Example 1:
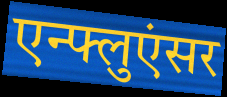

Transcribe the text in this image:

एन्फ्लुएंसर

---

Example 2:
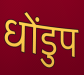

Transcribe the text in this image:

धोंडुप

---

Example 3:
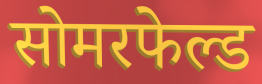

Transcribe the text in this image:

सोमरफेल्ड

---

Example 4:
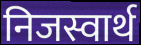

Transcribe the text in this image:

निजस्वार्थ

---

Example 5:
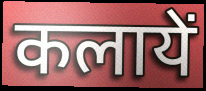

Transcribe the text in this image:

कलायें